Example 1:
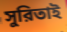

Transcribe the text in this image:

সুরিতাই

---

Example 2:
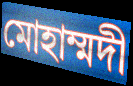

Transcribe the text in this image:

মোহাম্মদী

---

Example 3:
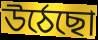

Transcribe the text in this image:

উঠেছো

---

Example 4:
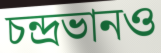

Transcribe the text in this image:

চন্দ্রভানও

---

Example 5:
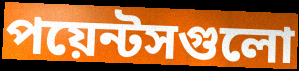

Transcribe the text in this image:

পয়েন্টসগুলো